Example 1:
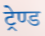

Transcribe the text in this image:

ट्रेण्ड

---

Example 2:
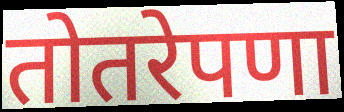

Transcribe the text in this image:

तोतरेपणा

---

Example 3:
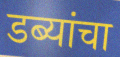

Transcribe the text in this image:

डब्यांचा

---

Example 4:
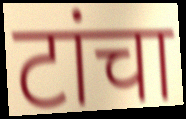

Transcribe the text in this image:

टांचा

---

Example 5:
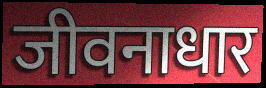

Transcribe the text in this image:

जीवनाधार